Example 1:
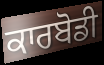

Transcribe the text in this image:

ਕਾਰਬੋਡੀ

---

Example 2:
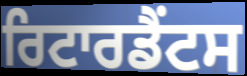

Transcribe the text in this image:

ਰਿਟਾਰਡੈਂਟਸ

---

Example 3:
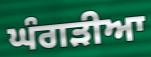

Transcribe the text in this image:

ਘੰਗੜੀਆ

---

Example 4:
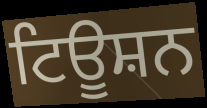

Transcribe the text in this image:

ਟਿਊਸ਼ਨ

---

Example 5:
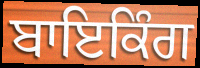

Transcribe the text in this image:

ਬਾਇਕਿੰਗ